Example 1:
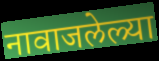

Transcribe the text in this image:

नावाजलेल्या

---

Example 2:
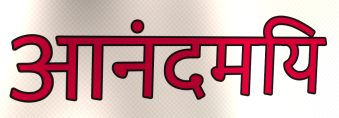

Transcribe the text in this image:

आनंदमयि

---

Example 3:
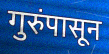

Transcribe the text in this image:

गुरुंपासून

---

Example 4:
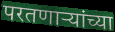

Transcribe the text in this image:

परतणाऱ्यांच्या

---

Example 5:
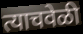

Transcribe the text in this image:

त्याचवेळी